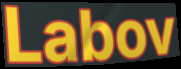
Labov